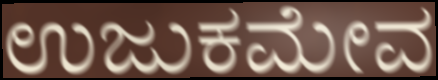
ಉಜುಕಮೇವ